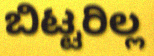
ಬಿಟ್ಟರಿಲ್ಲ